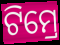
ଟିମ୍ରେ